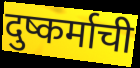
दुष्कर्माची